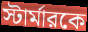
স্টার্মারকে